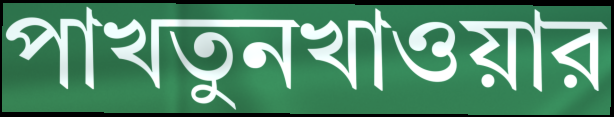
পাখতুনখাওয়ার